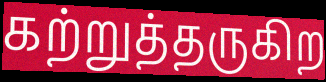
கற்றுத்தருகிற